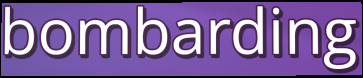
bombarding